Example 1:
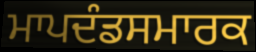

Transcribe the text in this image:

ਮਾਪਦੰਡਸਮਾਰਕ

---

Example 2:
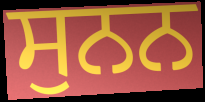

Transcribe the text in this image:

ਸੁਨਨ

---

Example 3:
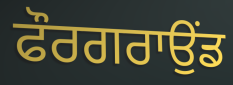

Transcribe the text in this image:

ਫੌਰਗਰਾਉਂਡ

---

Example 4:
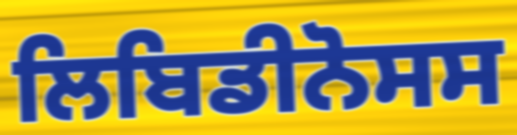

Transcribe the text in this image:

ਲਿਬਿਡੀਨੋਸਸ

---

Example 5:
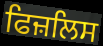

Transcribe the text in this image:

ਫਿਜ਼ਲਿਸ